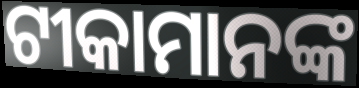
ଟୀକାମାନଙ୍କ